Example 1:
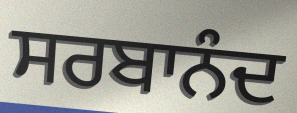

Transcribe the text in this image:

ਸਰਬਾਨੰਦ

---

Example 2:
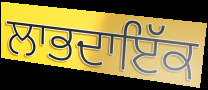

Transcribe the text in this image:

ਲਾਭਦਾਇੱਕ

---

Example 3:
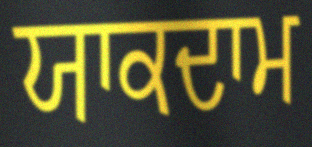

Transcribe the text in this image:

ਯਾਕਦਾਮ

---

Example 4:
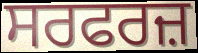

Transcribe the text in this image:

ਸਰਫਰਜ਼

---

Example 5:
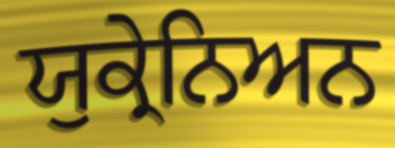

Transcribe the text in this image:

ਯੁਕ੍ਰੇਨਿਅਨ